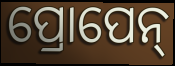
ପ୍ରୋପେନ୍